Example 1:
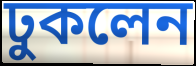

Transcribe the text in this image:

ঢুকলেন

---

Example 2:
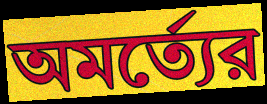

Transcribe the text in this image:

অমর্ত্যের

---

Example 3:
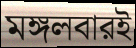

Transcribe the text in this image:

মঙ্গলবারই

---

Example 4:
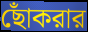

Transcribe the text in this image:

ছোঁকরার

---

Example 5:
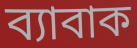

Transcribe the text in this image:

ব্যাবাক